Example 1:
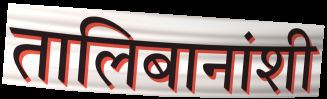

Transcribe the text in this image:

तालिबानांशी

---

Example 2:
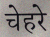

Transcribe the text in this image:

चेहरे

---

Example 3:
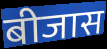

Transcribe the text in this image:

बीजास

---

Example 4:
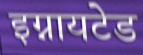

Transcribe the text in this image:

इग्नायटेड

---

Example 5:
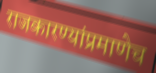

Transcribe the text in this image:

राजकारण्यांप्रमाणेच